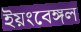
ইয়ংবেঙ্গল